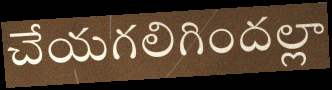
చేయగలిగిందల్లా